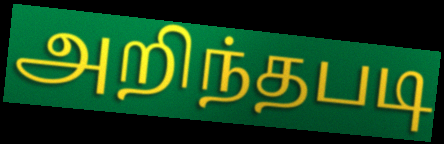
அறிந்தபடி